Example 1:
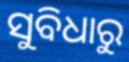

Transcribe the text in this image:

ସୁବିଧାରୁ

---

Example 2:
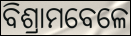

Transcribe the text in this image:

ବିଶ୍ରାମବେଳେ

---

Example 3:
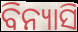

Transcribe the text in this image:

ବିନ୍ୟାସି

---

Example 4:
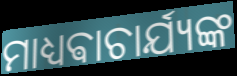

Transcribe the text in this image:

ମାଧ୍ୟଵାଚାର୍ଯ୍ୟଙ୍କ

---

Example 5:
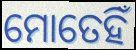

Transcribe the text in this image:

ମୋତେହିଁ